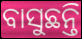
ବାସୁଛନ୍ତି